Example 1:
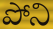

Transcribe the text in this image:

పోని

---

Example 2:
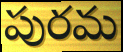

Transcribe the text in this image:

పురమ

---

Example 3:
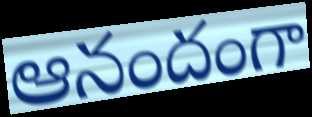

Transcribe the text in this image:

ఆనందంగా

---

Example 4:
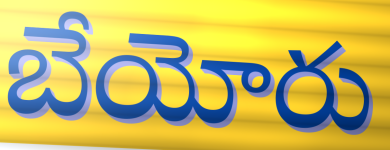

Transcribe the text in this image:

బేయోరు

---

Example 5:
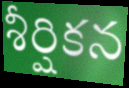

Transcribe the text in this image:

శీర్షికన